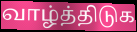
வாழ்த்திடுக